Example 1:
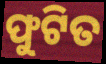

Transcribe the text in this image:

ଫୁଟିତ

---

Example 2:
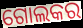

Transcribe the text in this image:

ଗୋଲକର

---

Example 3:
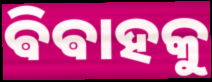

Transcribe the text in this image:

ଵିଵାହକୁ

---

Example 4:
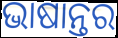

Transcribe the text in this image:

ଭାଷାନ୍ତର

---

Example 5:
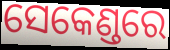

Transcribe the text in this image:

ସେକେଣ୍ଡରେ